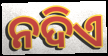
ନଦିଏ